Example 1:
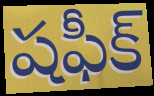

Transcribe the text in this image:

షఫీక్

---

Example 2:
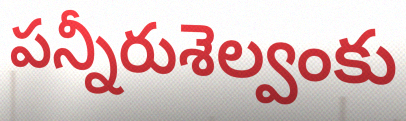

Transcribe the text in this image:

పన్నీరుశెల్వంకు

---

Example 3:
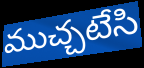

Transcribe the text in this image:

ముచ్చటేసి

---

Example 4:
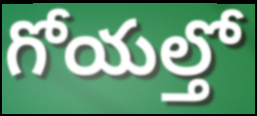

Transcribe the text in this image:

గోయల్తో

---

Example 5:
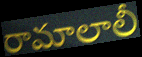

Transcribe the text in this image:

రామాలాలీ